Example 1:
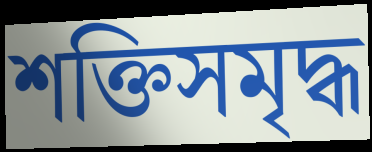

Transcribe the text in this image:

শক্তিসমৃদ্ধ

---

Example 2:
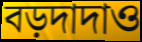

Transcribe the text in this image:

বড়দাদাও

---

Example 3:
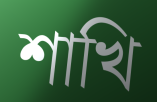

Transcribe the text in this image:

শাখি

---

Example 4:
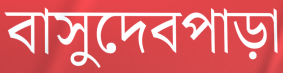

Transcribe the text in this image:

বাসুদেবপাড়া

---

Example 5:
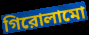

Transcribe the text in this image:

গিরোলামো